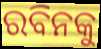
ରବିନକୁ